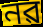
নৱ